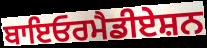
ਬਾਇਓਰਮੈਡੀਏਸ਼ਨ